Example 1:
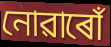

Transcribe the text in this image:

নোৱাৰোঁ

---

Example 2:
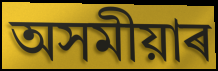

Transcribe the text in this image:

অসমীয়াৰ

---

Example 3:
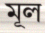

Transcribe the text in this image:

মূল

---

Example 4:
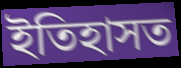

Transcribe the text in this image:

ইতিহাসত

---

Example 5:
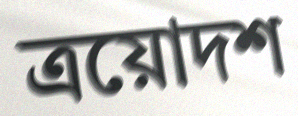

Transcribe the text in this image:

ত্ৰয়োদশ